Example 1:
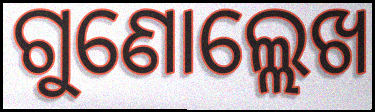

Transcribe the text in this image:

ଗୁଣୋଲ୍ଲେଖ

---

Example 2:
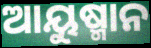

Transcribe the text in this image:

ଆୟୁଷ୍ମାନ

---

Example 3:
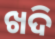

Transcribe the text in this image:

ଖଦି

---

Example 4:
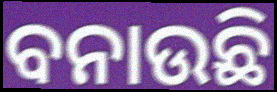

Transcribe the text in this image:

ବନାଉଛି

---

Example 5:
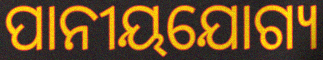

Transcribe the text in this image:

ପାନୀୟଯୋଗ୍ୟ